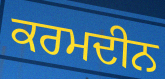
ਕਰਮਦੀਨ